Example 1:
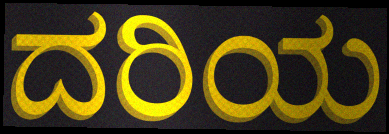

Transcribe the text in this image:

ದರಿಯ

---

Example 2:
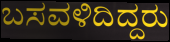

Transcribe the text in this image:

ಬಸವಳಿದಿದ್ದರು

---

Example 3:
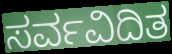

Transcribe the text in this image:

ಸರ್ವವಿದಿತ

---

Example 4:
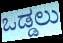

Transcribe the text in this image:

ಒಡ್ಡಲು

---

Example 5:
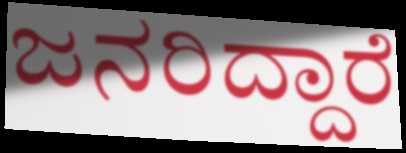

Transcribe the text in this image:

ಜನರಿದ್ದಾರೆ